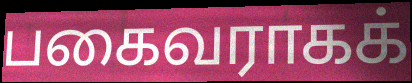
பகைவராகக்